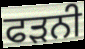
ਫੜਨੀ